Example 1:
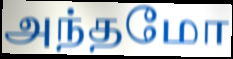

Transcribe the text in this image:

அந்தமோ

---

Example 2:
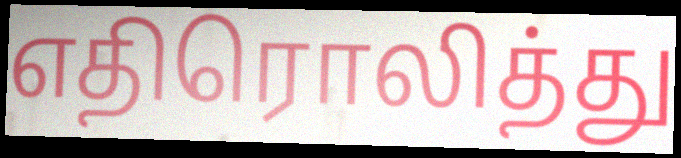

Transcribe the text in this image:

எதிரொலித்து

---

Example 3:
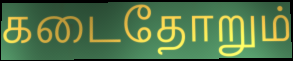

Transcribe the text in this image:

கடைதோறும்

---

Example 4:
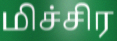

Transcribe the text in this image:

மிச்சிர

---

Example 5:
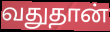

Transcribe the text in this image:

வதுதான்